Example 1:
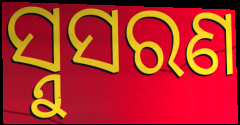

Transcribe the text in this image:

ସ୍ନୁସରଣ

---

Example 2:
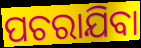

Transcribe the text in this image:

ପଚରାଯିବା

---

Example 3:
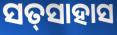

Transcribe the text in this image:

ସତ୍‌ସାହାସ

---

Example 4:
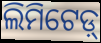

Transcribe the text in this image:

ଲିମିଟେଡ଼୍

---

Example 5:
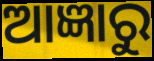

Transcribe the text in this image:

ଆଜ୍ଞାରୁ